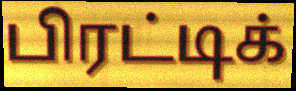
பிரட்டிக்